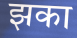
झका